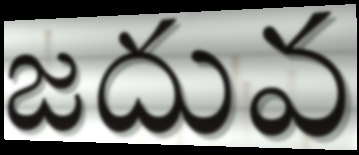
జదువ